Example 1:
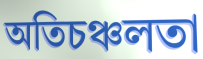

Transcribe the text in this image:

অতিচঞ্চলতা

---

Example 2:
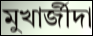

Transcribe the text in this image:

মুখার্জীদা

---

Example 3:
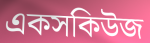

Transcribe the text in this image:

একসকিউজ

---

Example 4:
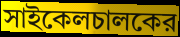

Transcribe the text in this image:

সাইকেলচালকের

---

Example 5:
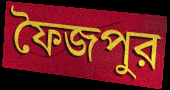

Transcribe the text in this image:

ফৈজপুর